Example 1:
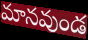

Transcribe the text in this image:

మానవుండ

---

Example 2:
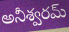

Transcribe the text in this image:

అనీశ్వరమ్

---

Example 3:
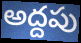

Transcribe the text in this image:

అద్దపు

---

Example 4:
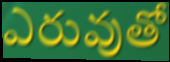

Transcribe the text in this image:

ఎరువుతో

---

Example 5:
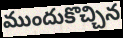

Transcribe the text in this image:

ముందుకొచ్చిన